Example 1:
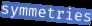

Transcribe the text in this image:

symmetries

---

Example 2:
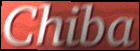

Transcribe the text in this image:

Chiba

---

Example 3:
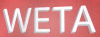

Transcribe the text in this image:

WETA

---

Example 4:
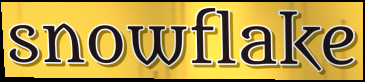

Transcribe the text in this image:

snowflake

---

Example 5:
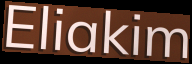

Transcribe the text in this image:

Eliakim